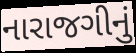
નારાજગીનું